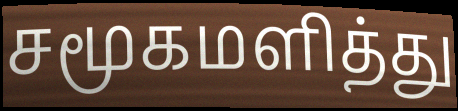
சமூகமளித்து